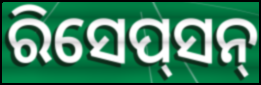
ରିସେପ୍‍ସନ୍